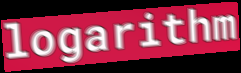
logarithm